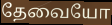
தேவையோ